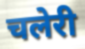
चलेरी